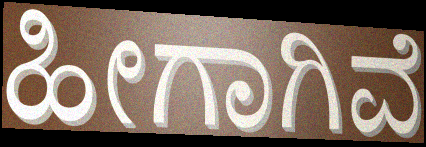
ಹೀಗಾಗಿವೆ